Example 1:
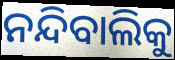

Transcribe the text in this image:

ନନ୍ଦିବାଲିକୁ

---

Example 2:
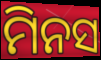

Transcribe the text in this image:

ମିନସ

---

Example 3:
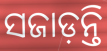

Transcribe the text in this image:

ସଜାଡ଼ନ୍ତି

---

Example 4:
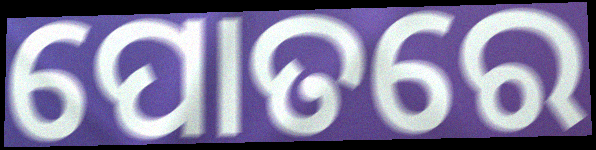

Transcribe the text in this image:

ପୋତରେ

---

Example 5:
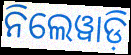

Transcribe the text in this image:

ନିଲେୱାଡ଼ି